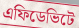
এফিডেভিটে